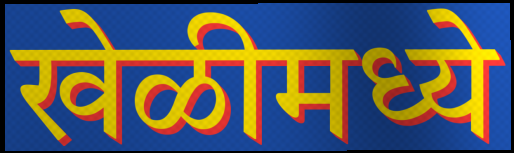
खेळीमध्ये